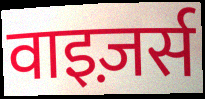
वाइज़र्स